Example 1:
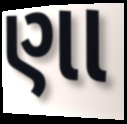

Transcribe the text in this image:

ણા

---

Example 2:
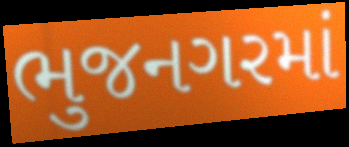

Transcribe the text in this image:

ભુજનગરમાં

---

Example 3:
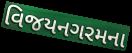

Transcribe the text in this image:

વિજયનગરમના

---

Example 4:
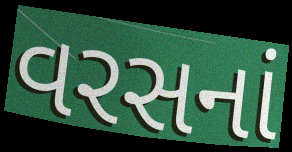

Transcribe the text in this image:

વરસનાં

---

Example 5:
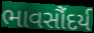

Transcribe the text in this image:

ભાવસૌંદર્ય